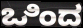
ಒಿಂದ